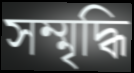
সম্মৃদ্ধি